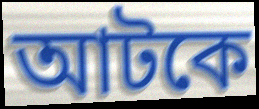
আটকে